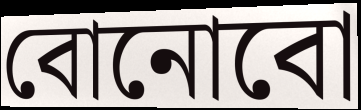
বোনোবো